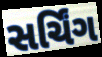
સર્ચિંગ